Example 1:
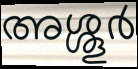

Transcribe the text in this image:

അശ്ശൂർ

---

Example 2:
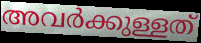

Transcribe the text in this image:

അവർക്കുള്ളത്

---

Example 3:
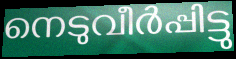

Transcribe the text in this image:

നെടുവീർപ്പിട്ടു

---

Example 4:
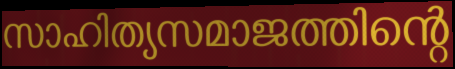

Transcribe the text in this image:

സാഹിത്യസമാജത്തിന്റെ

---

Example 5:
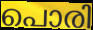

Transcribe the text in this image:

പൊരി